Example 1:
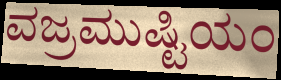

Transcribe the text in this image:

ವಜ್ರಮುಷ್ಟಿಯಂ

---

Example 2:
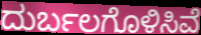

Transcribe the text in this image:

ದುರ್ಬಲಗೊಳಿಸಿವೆ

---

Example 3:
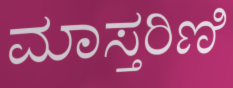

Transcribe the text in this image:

ಮಾಸ್ತರಿಣಿ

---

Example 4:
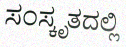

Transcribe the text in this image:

ಸಂಸ್ಕೃತದಲ್ಲಿ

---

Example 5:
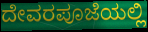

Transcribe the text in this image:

ದೇವರಪೂಜೆಯಲ್ಲಿ